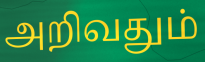
அறிவதும்